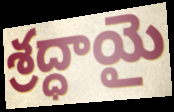
శ్రద్ధాయై